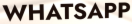
WHATSAPP